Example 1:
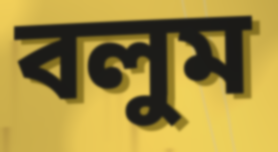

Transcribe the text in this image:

বলুম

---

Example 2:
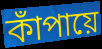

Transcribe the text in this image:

কাঁপায়ে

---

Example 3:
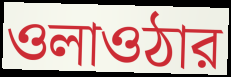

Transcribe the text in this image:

ওলাওঠার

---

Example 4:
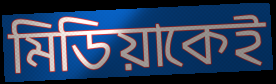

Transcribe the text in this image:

মিডিয়াকেই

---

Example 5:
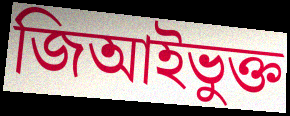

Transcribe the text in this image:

জিআইভুক্ত